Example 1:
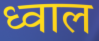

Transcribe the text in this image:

ध्वाल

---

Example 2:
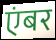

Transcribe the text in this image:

एंबर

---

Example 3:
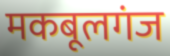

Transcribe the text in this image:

मकबूलगंज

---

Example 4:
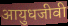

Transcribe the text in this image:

आयुधजीवी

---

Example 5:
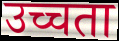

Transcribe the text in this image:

उच्चता